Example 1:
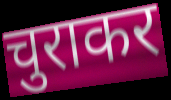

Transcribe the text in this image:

चुराकर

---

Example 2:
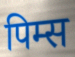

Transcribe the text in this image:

पिम्स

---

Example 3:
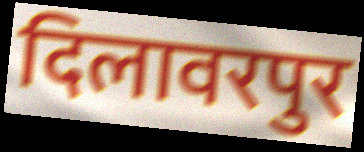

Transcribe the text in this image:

दिलावरपुर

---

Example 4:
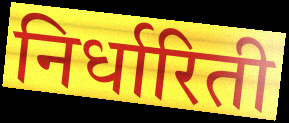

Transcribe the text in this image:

निर्धारिती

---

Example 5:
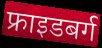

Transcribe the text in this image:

फ्राइडबर्ग